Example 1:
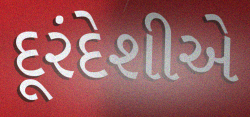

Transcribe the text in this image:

દૂરંદેશીએ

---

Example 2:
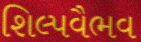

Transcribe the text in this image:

શિલ્પવૈભવ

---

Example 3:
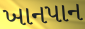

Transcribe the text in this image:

ખાનપાન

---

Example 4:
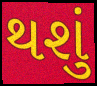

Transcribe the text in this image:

થશું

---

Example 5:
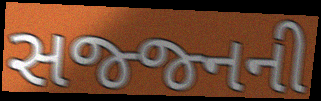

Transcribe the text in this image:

સજ્જ્નની